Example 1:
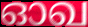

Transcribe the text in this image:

ഓഖ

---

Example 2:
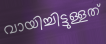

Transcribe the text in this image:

വായിച്ചിട്ടുള്ളത്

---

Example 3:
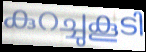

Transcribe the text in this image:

കുറച്ചുകൂടി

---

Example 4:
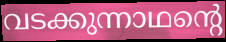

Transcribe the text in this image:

വടക്കുന്നാഥന്റെ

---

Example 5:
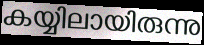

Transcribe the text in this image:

കയ്യിലായിരുന്നു